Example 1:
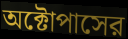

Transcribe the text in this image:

অক্টোপাসের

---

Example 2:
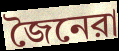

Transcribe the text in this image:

জৈনেরা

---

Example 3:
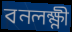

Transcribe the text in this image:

বনলক্ষ্ণী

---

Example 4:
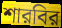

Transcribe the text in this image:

শারবির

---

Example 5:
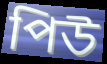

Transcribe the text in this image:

পিউ